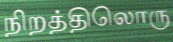
நிறத்திலொரு